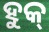
ହୁକ୍